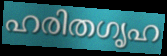
ഹരിതഗൃഹ